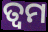
ତ୍ୱମ